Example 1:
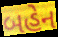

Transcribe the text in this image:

બહેન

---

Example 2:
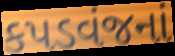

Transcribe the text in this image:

કપડવંજનાં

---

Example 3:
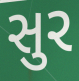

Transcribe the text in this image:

સુર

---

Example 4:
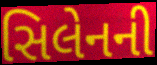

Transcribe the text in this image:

સિલેનની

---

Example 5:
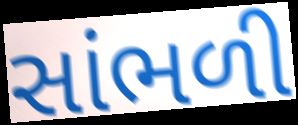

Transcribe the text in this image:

સાંભળી